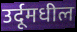
उर्दूमधील